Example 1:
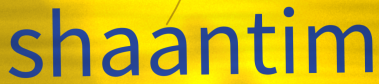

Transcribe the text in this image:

shaantim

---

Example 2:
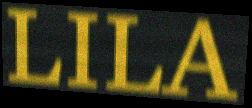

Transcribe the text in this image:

LILA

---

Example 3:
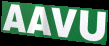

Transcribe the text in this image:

AAVU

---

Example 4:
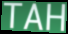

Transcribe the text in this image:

TAH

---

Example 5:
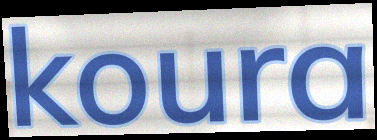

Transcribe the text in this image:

koura